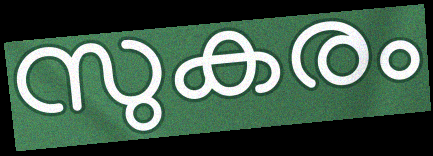
സുകരം